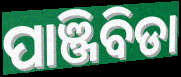
ପାଞ୍ଜିବିଡା